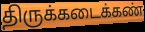
திருக்கடைக்கண்